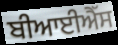
ਬੀਆਈਐੱਸ